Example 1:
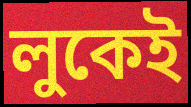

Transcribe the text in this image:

লুকেই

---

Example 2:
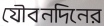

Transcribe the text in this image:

যৌবনদিনের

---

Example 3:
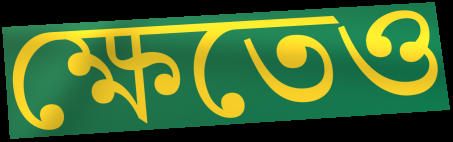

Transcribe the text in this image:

ক্ষেতেও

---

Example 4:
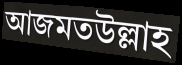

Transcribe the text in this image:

আজমতউল্লাহ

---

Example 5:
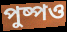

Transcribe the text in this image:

পুষ্পও